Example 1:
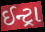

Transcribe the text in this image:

ઈન્ટ્રા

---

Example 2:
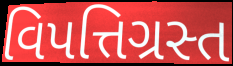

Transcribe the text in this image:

વિપત્તિગ્રસ્ત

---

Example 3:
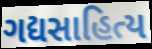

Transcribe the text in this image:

ગદ્યસાહિત્ય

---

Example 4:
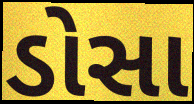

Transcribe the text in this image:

ડોસા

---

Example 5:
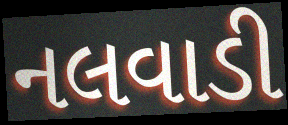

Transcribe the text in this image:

નલવાડી